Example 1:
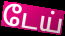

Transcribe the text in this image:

டேய்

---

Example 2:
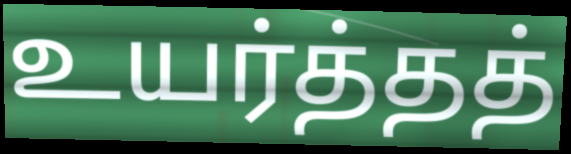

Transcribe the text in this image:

உயர்த்தத்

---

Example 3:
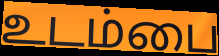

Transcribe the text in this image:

உடம்பை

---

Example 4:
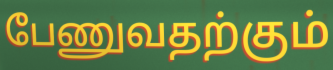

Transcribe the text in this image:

பேணுவதற்கும்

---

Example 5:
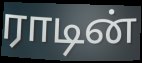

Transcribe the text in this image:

ராடின்